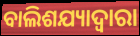
ବାଲିଶଯ୍ୟାଦ୍ଵାରା